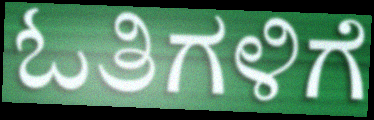
ಓತಿಗಳಿಗೆ